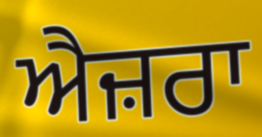
ਐਜ਼ਰਾ